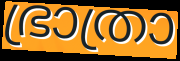
ഭ്രാത്രാ